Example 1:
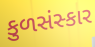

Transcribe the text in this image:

કુળસંસ્કાર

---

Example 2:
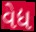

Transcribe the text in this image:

વેદ્ય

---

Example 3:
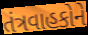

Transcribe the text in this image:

તંત્રવાહકોને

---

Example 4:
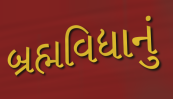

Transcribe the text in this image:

બ્રહ્મવિદ્યાનું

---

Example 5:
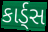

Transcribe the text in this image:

કાર્ડ્સ